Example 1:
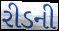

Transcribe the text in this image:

રીડની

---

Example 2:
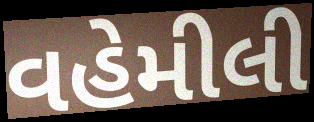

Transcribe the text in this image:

વહેમીલી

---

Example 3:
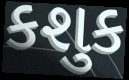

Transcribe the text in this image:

કશુક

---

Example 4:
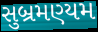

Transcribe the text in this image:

સુબ્રમણ્યમ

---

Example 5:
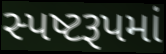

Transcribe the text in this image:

સ્પષ્ટરૂપમાં